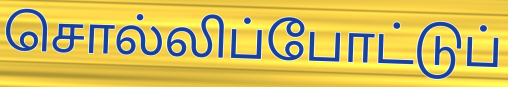
சொல்லிப்போட்டுப்